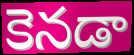
కెనడా